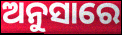
ଅନୁସାରେ